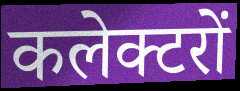
कलेक्टरों